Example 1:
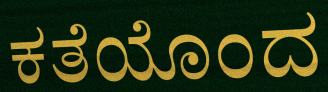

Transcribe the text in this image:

ಕತೆಯೊಂದ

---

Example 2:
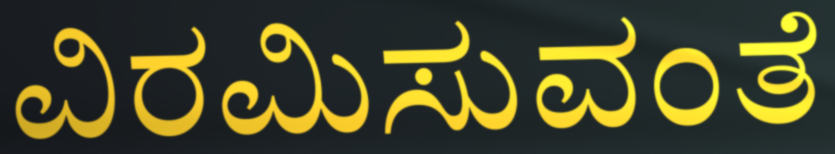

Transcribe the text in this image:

ವಿರಮಿಸುವಂತೆ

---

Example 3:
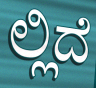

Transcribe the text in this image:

ಲ್ಲಿದೆ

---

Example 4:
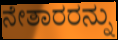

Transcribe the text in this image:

ನೇತಾರರನ್ನು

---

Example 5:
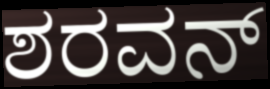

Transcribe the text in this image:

ಶರವನ್